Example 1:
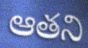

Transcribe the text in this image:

ఆతని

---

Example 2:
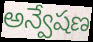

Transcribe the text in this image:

అన్వేషణ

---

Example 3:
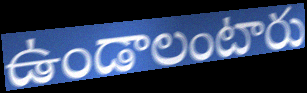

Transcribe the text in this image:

ఉండాలంటారు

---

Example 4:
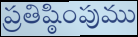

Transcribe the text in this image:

ప్రతిష్ఠింపుము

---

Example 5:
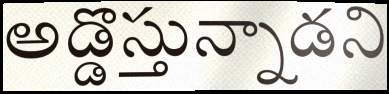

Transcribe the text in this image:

అడ్డొస్తున్నాడని